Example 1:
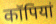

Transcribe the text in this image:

कॉपियां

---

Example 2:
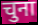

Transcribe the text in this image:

चुना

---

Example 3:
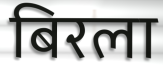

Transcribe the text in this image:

बिरला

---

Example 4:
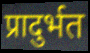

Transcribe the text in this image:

प्रादुर्भत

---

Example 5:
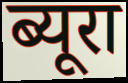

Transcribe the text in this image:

ब्यूरा